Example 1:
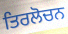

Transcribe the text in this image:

ਤਿਰਲੋਚਨ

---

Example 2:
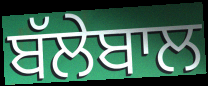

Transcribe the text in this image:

ਬੱਲੇਬਾਲ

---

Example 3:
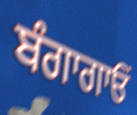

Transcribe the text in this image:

ਬੰਗਾਗਾਓਂ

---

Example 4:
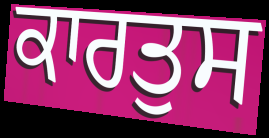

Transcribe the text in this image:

ਕਾਰਤੁਸ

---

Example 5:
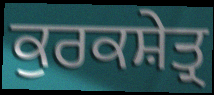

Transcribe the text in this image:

ਕੁਰਕਸ਼ੇਤ੍ਰ